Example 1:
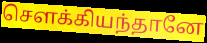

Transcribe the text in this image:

சௌக்கியந்தானே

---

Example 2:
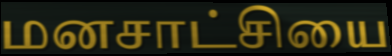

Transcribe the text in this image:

மனசாட்சியை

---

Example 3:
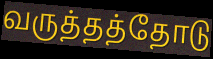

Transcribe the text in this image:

வருத்தத்தோடு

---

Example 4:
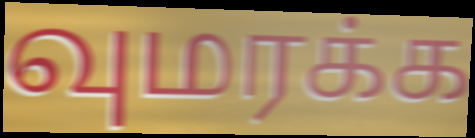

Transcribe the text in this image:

வுமரக்க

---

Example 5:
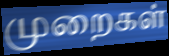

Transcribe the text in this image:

முறைகள்